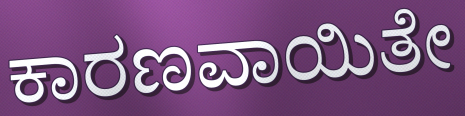
ಕಾರಣವಾಯಿತೇ